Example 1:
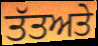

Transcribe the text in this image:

ਤੱਤਅਤੇ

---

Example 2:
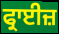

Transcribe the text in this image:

ਫ੍ਰਾਈਜ਼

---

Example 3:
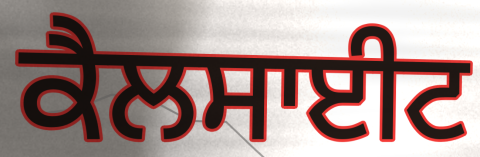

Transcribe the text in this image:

ਕੈਲਸਾਈਟ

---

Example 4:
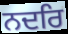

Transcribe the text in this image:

ਨਦਰਿ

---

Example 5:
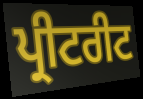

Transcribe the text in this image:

ਪ੍ਰੀਟਰੀਟ